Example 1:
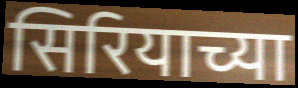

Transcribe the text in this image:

सिरियाच्या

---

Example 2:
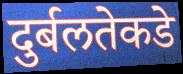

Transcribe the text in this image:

दुर्बलतेकडे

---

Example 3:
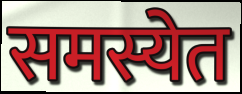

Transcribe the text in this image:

समस्येत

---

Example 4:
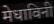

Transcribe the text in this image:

मेधाविनी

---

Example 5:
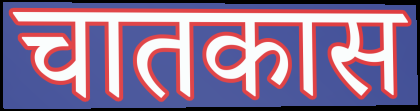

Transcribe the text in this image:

चातकास